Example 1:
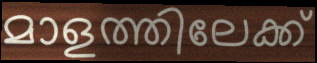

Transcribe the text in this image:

മാളത്തിലേക്ക്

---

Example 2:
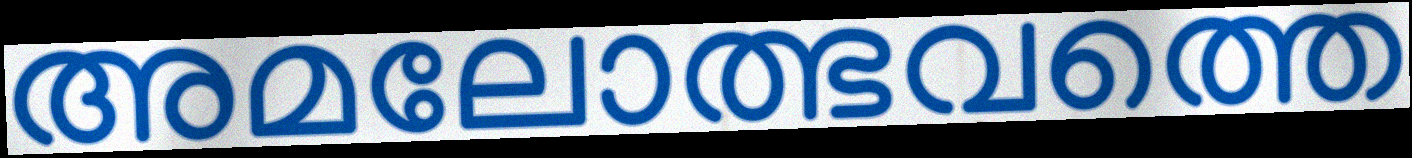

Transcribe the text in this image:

അമലോത്ഭവത്തെ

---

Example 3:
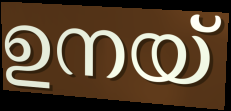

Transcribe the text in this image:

ഉനയ്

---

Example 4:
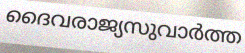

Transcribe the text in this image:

ദൈവരാജ്യസുവാർത്ത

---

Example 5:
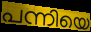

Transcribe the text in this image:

പന്നിയെ